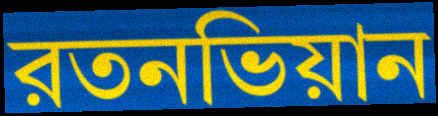
রতনভিয়ান